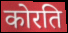
कोरति